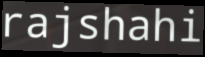
rajshahi